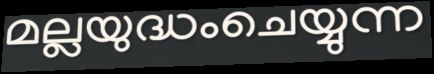
മല്ലയുദ്ധംചെയ്യുന്ന